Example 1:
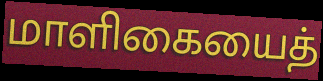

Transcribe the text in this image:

மாளிகையைத்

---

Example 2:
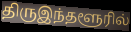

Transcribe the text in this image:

திருஇந்தளூரில்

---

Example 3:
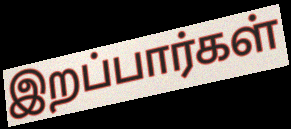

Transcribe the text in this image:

இறப்பார்கள்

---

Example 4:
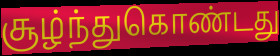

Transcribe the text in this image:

சூழ்ந்துகொண்டது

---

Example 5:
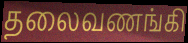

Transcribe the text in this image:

தலைவணங்கி